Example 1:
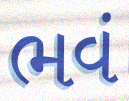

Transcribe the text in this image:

ભવં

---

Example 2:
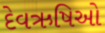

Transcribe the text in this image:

દેવઋષિઓ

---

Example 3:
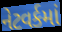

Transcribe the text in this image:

નેટવર્કમાં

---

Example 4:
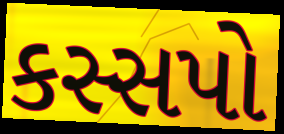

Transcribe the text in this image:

કસ્સપો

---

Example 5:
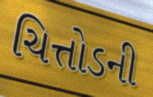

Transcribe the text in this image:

ચિત્તોડની